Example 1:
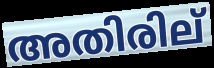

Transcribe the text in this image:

അതിരില്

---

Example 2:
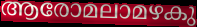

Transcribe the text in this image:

ആരോമലാമഴകു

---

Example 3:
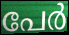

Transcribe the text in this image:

പേർ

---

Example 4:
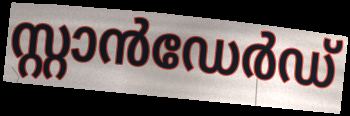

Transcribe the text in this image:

സ്റ്റാൻഡേർഡ്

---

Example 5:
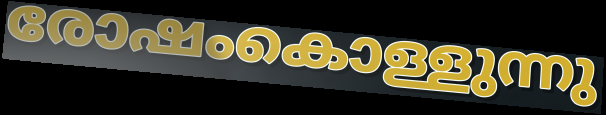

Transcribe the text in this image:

രോഷംകൊള്ളുന്നു